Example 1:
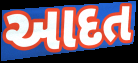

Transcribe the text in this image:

આદત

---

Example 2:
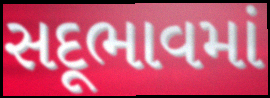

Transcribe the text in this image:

સદૂભાવમાં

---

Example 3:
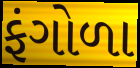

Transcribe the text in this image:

ફંગોળા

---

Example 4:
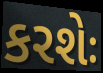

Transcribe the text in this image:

કરશેઃ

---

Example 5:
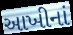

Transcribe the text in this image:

આખીનાં